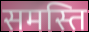
समस्ति